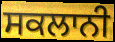
ਸਕਲਾਨੀ